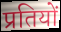
प्रतियों